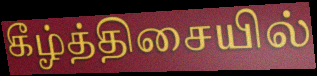
கீழ்த்திசையில்